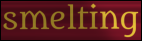
smelting